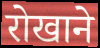
रोखाने